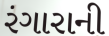
રંગારાની